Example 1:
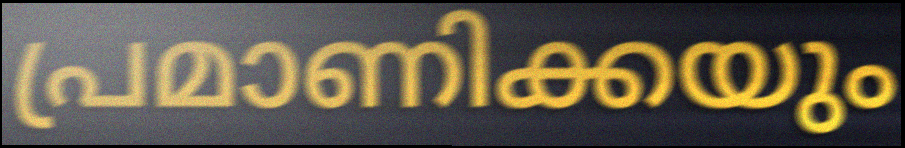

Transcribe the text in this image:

പ്രമാണിക്കയും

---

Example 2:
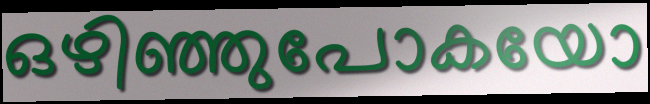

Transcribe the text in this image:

ഒഴിഞ്ഞുപോകയോ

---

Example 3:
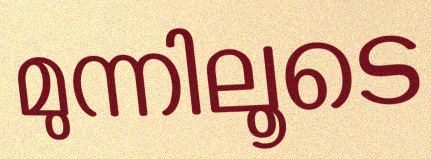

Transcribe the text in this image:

മുന്നിലൂടെ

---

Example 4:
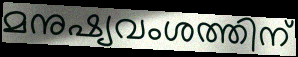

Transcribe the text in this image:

മനുഷ്യവംശത്തിന്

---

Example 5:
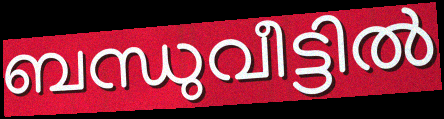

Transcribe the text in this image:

ബന്ധുവീട്ടിൽ